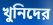
খুনিদের